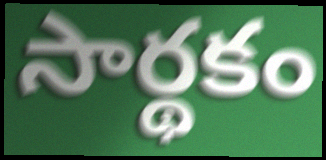
సార్థకం